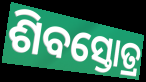
ଶିବସ୍ତୋତ୍ର